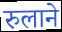
रुलाने